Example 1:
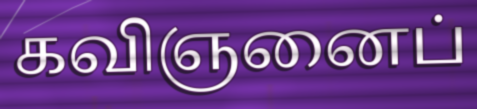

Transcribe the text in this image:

கவிஞனைப்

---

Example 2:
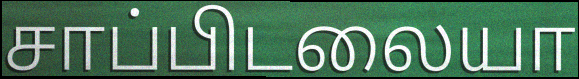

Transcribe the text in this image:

சாப்பிடலையா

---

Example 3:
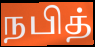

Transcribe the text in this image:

நபித்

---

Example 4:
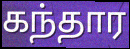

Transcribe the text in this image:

கந்தார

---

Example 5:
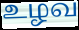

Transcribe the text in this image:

உழவ